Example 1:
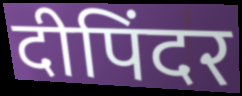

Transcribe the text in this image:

दीपिंदर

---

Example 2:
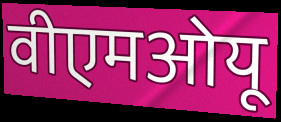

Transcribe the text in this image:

वीएमओयू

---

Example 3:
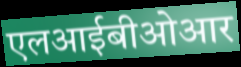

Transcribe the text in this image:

एलआईबीओआर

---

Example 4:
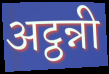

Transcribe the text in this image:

अट्ठन्नी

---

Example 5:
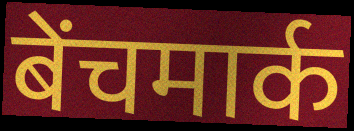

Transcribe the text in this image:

बेंचमार्क